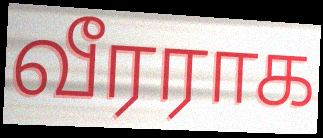
வீரராக